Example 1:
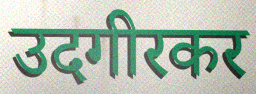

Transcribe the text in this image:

उदगीरकर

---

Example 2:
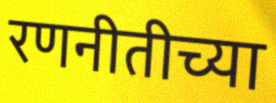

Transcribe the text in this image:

रणनीतीच्या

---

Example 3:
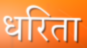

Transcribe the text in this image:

धरिता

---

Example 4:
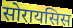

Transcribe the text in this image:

सोरायसिस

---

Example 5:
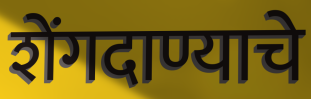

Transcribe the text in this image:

शेंगदाण्याचे